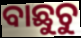
ବାଛୁଚୁ